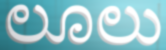
ಲೂಲು